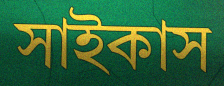
সাইকাস